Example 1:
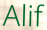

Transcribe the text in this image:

Alif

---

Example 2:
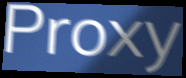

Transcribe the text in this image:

Proxy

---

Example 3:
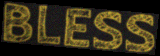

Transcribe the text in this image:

BLESS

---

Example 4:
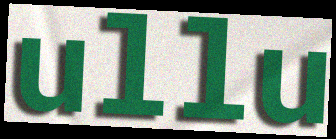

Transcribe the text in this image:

ullu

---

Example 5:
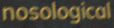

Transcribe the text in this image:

nosological